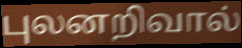
புலனறிவால்